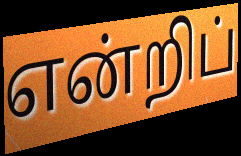
என்றிப்